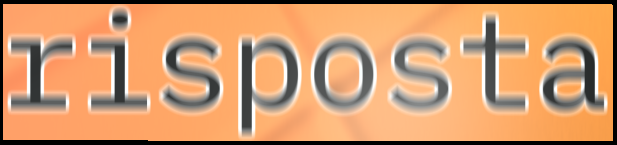
risposta